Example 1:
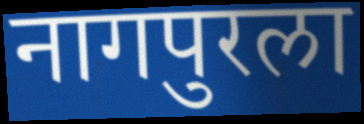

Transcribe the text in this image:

नागपुरला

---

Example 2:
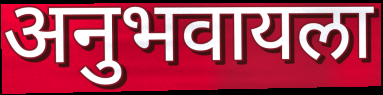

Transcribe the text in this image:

अनुभवायला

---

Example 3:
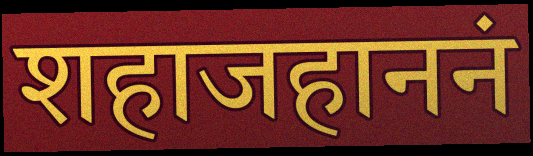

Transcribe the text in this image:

शहाजहाननं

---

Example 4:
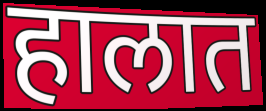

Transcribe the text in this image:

हालात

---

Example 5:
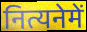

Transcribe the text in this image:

नित्यनेमें